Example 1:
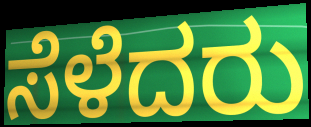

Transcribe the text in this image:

ಸೆಳೆದರು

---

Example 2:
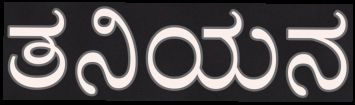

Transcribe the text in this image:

ತನಿಯನ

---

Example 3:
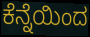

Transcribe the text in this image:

ಕೆನ್ನೆಯಿಂದ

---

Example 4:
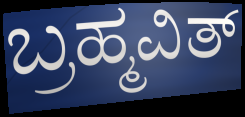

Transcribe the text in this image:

ಬ್ರಹ್ಮವಿತ್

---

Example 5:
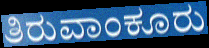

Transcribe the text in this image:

ತಿರುವಾಂಕೂರು